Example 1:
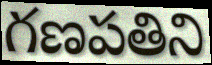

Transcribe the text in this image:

గణపతిని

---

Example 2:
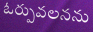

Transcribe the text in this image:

ఓర్పువలనను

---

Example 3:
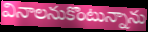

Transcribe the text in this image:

వినాలనుకొంటున్నాను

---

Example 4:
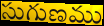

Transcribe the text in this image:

సుగుణము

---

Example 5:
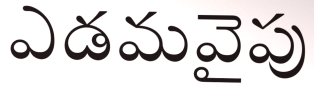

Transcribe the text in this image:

ఎడమవైపు